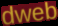
dweb